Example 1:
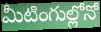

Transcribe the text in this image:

మీటింగుల్లోనో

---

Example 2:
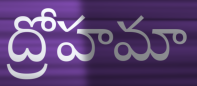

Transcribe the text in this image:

ద్రోహమా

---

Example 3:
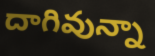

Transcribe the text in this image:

దాగివున్నా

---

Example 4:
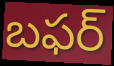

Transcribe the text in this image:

బఫర్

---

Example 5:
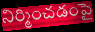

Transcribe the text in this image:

నిర్మించడంపై